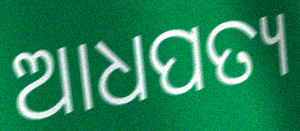
ଆଧପତ୍ୟ